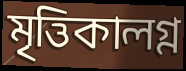
মৃত্তিকালগ্ন